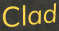
Clad